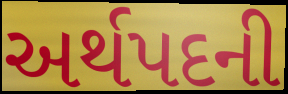
અર્થપદની